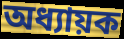
অধ্যায়ক